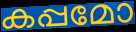
കപ്പമോ